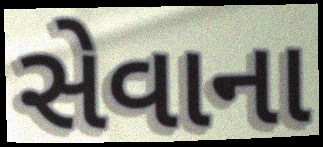
સેવાના